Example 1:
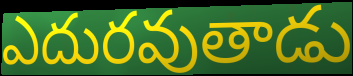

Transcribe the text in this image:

ఎదురవుతాడు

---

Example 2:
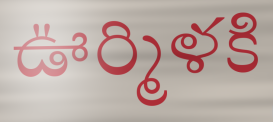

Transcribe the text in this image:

ఊర్మిళకి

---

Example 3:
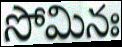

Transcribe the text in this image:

సోమినః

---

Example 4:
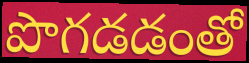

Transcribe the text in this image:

పొగడడంతో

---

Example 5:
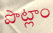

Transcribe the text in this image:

పొట్లాం